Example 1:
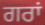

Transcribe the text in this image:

ਗਰਾਂ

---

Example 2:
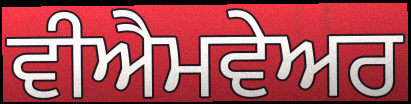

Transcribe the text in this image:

ਵੀਐਮਵੇਅਰ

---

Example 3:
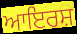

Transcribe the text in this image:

ਆਇਰਸ਼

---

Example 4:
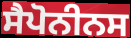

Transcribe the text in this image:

ਸੈਪੋਨੀਨਸ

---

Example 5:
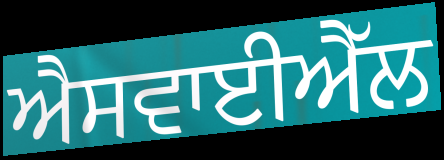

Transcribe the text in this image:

ਐਸਵਾਈਐੱਲ